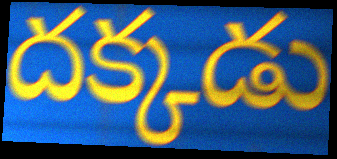
దక్కడు